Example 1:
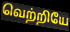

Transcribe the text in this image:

வெற்றியே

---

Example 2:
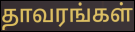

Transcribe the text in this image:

தாவரங்கள்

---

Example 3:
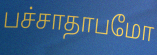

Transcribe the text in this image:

பச்சாதாபமோ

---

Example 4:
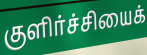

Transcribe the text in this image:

குளிர்ச்சியைக்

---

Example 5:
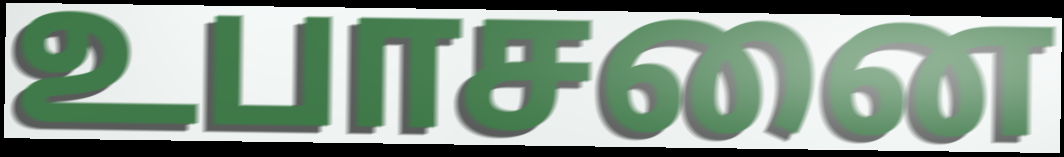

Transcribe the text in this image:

உபாசனை